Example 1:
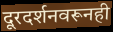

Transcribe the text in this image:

दूरदर्शनवरूनही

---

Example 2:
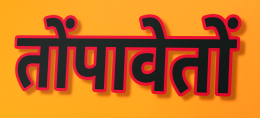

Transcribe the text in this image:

तोंपावेतों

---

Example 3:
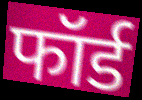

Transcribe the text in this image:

फॉर्ड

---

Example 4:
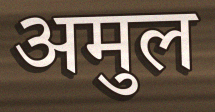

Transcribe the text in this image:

अमुल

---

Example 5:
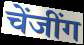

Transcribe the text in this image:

चेंजींग